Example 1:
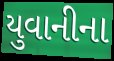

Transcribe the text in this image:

યુવાનીના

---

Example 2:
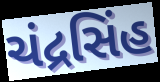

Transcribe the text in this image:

ચંદ્રસિંહ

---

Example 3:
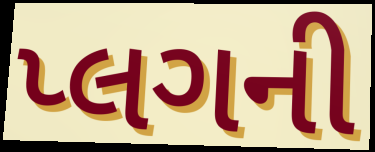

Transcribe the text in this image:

પ્લગની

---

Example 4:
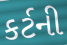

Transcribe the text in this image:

કર્ટની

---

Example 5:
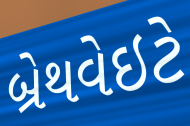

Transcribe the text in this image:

બ્રેથવેઇટે